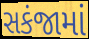
સકંજામાં